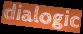
dialogic